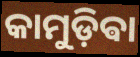
କାମୁଡ଼ିଵା